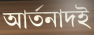
আর্তনাদই